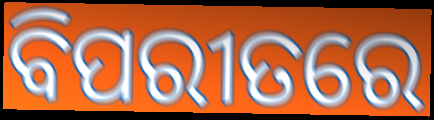
ବିପରୀତରେ